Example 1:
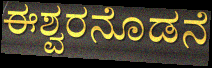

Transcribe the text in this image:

ಈಶ್ವರನೊಡನೆ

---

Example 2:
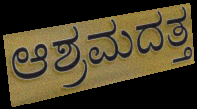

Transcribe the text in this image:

ಆಶ್ರಮದತ್ತ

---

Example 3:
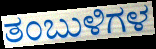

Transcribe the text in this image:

ತಂಬುಳಿಗಳ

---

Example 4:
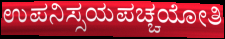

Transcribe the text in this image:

ಉಪನಿಸ್ಸಯಪಚ್ಚಯೋತಿ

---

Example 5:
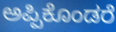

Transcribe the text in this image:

ಅಪ್ಪಿಕೊಂಡರೆ